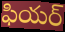
ఫియర్